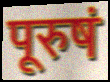
पूरुषं